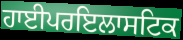
ਹਾਈਪਰਇਲਾਸਟਿਕ